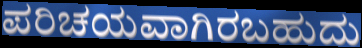
ಪರಿಚಯವಾಗಿರಬಹುದು